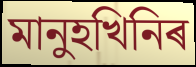
মানুহখিনিৰ